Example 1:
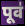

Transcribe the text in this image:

पूव॑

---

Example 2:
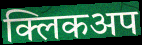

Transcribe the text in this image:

क्लिकअप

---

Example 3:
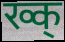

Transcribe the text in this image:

ख्क्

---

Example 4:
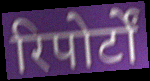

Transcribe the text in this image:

रिपोर्टों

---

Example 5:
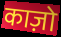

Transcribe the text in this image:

काज़ो